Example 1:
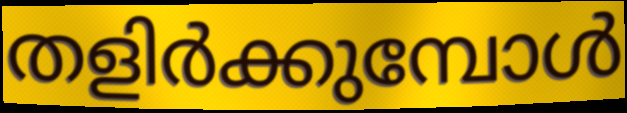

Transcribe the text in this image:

തളിർക്കുമ്പോൾ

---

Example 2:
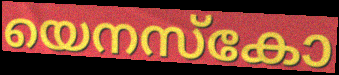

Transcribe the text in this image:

യെനസ്കോ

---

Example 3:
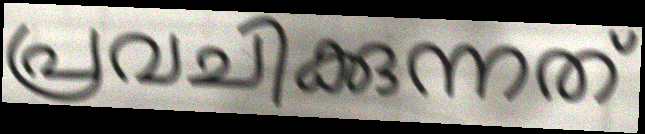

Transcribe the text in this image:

പ്രവചിക്കുന്നത്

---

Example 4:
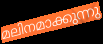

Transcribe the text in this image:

മലിനമാക്കുന്നു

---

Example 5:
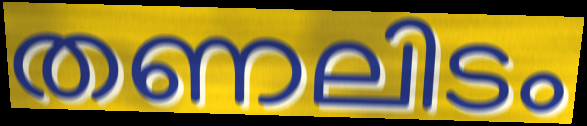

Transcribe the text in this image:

തണലിടം